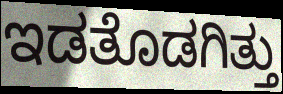
ಇಡತೊಡಗಿತ್ತು